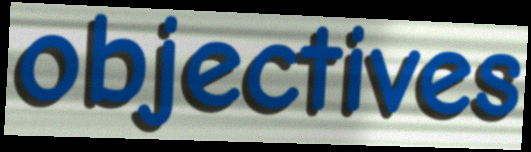
objectives